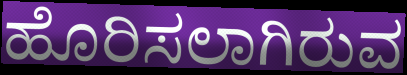
ಹೊರಿಸಲಾಗಿರುವ